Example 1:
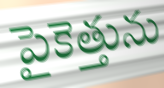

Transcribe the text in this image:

పైకెత్తును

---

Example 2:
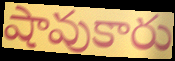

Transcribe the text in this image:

షావుకారు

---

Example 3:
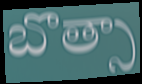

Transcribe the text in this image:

బొత్సా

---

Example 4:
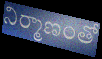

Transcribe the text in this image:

నిర్మాణంతో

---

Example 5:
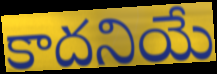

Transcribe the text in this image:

కాదనియే